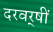
दरवर्षीं